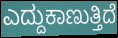
ಎದ್ದುಕಾಣುತ್ತಿದೆ